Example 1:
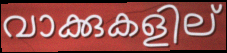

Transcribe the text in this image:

വാക്കുകളില്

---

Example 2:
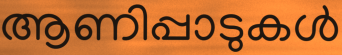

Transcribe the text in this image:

ആണിപ്പാടുകൾ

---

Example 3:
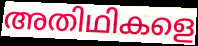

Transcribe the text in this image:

അതിഥികളെ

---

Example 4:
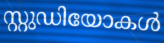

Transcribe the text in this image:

സ്റ്റുഡിയോകൾ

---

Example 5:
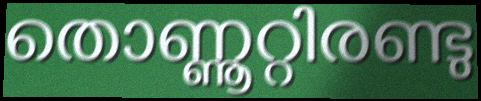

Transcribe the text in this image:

തൊണ്ണൂറ്റിരണ്ടു